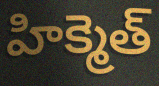
హిక్మెత్